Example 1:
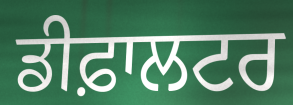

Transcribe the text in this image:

ਡੀਫ਼ਾਲਟਰ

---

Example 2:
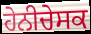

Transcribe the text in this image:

ਹੇਨੀਚੇਸਕ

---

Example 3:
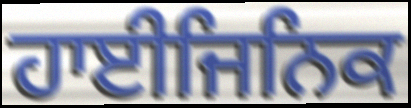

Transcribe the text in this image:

ਹਾਈਜਿਨਿਕ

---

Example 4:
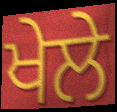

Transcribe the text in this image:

ਖੇਲੇ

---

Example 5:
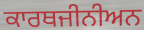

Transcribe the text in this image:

ਕਾਰਥਜੀਨੀਅਨ